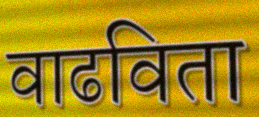
वाढविता